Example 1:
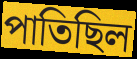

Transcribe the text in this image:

পাতিছিল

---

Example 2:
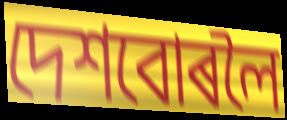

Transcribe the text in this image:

দেশবোৰলৈ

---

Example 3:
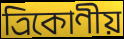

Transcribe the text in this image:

ত্ৰিকোণীয়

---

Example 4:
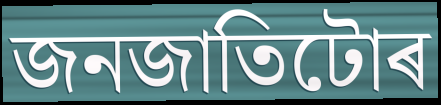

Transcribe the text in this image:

জনজাতিটোৰ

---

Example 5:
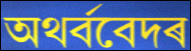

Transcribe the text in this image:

অথৰ্ববেদৰ